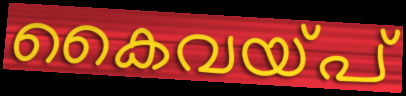
കൈവയ്പ്